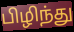
பிழிந்து